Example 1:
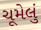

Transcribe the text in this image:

ચૂમેલું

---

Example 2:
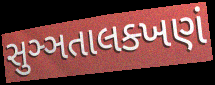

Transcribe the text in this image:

સુઞ્ઞતાલક્ખણં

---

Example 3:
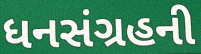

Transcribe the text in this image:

ધનસંગ્રહની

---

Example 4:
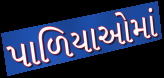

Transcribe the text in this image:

પાળિયાઓમાં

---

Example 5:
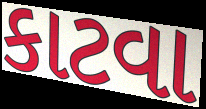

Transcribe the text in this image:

કાટવા